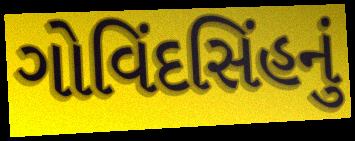
ગોવિંદસિંહનું